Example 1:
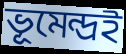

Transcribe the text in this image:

ভূমেন্দ্রই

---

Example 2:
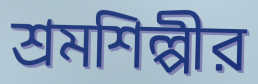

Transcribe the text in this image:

শ্রমশিল্পীর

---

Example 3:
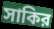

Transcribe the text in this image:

সাকির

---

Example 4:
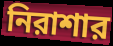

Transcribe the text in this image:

নিরাশার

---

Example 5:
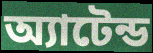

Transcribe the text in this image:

অ্যাটেন্ড